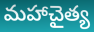
మహాచైత్య